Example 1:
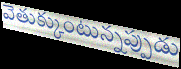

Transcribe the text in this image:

వెతుక్కుంటున్నప్పుడు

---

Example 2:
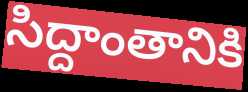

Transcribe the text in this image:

సిద్దాంతానికి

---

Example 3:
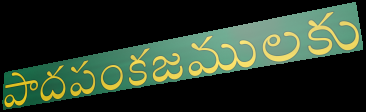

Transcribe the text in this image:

పాదపంకజములకు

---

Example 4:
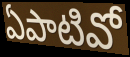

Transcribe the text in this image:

ఏపాటివో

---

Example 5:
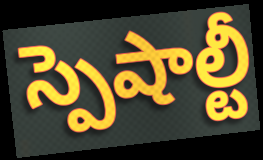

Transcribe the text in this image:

స్పెషాల్టీ